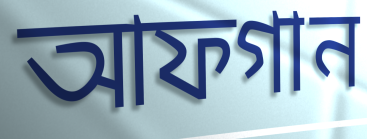
আফগান